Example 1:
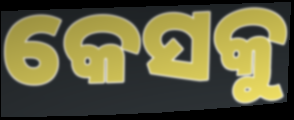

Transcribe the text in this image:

କେସକୁ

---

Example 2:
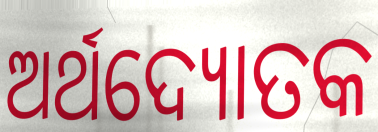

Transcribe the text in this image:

ଅର୍ଥଦ୍ୟୋତକ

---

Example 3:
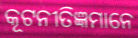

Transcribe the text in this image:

କୂଟନୀତିଜ୍ଞମାନେ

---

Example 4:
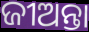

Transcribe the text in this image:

ଜୀଅନ୍ତା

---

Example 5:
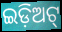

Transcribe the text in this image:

ଇଡ଼ିଅଟ୍